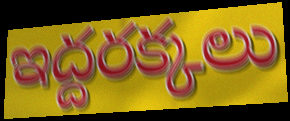
ఇద్దరక్కలు